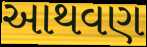
આથવણ